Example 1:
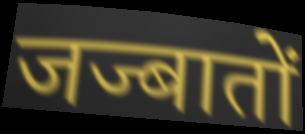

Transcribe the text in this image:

जज्बातों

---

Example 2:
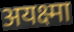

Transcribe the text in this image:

अयक्ष्मा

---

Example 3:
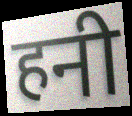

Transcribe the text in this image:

हनी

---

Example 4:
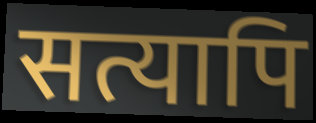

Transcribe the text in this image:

सत्यापि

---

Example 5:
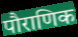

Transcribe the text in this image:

पौराणिक